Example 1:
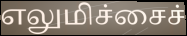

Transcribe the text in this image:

எலுமிச்சைச்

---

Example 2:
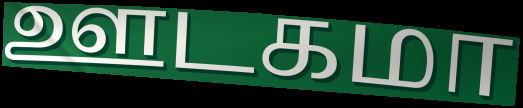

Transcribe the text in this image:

ஊடகமா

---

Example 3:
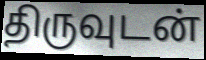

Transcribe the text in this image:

திருவுடன்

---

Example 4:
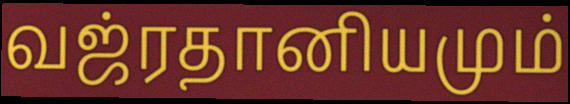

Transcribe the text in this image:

வஜ்ரதானியமும்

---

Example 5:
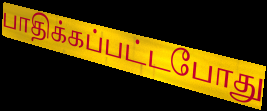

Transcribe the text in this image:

பாதிக்கப்பட்டபோது